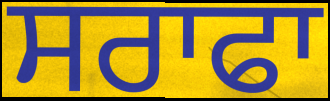
ਸਰਾਫਾ